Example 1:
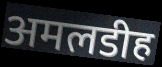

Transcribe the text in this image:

अमलडीह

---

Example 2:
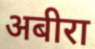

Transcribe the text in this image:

अबीरा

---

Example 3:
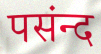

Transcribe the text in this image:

पसंन्द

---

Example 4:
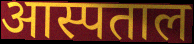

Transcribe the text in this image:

आस्पताल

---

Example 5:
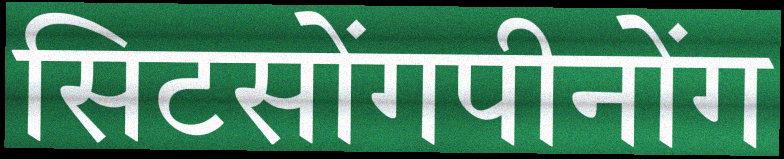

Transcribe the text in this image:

सिटसोंगपीनोंग